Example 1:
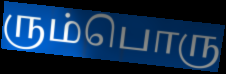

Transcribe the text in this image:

ரும்பொரு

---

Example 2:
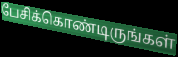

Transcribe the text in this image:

பேசிக்கொண்டிருங்கள்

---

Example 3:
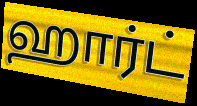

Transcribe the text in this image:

ஹார்ட்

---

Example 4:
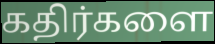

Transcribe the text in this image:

கதிர்களை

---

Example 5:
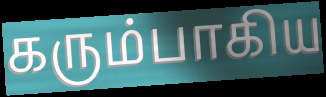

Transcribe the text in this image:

கரும்பாகிய